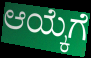
ಆಯ್ಕೆಗೆ